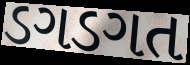
ડગડગત